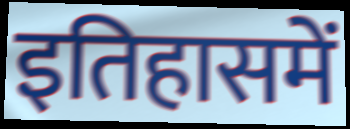
इतिहासमें